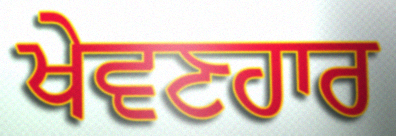
ਖੇਵਣਹਾਰ